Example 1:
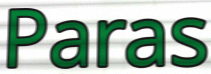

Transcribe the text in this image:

Paras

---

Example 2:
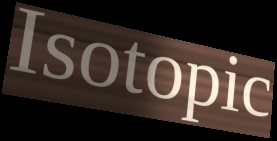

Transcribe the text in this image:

Isotopic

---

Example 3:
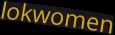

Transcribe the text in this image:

lokwomen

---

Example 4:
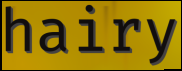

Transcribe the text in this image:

hairy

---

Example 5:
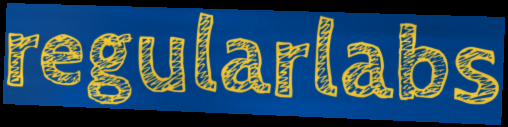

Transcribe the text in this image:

regularlabs